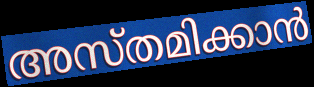
അസ്തമിക്കാൻ